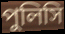
পুলিসি